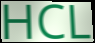
HCL